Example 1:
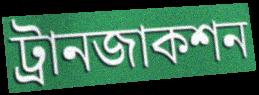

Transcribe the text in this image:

ট্রানজাকশন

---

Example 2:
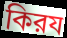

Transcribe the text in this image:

কিরয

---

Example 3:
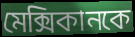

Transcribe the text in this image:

মেক্সিকানকে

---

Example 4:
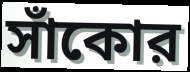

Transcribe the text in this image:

সাঁকোর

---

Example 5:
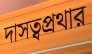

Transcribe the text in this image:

দাসত্বপ্রথার